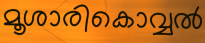
മൂശാരികൊവ്വൽ